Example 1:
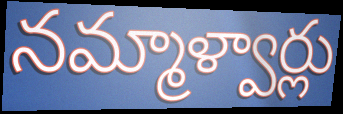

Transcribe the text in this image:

నమ్మాళ్వార్లు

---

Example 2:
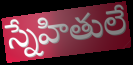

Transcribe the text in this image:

స్నేహితులే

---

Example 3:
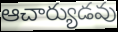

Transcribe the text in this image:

ఆచార్యుడవు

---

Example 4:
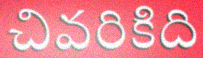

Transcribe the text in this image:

చివరికిది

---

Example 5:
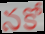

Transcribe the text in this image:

నకో